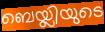
ബെയ്ലിയുടെ